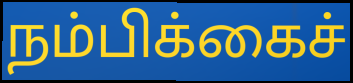
நம்பிக்கைச்